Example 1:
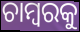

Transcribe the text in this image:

ଚାମ୍ବରକୁ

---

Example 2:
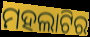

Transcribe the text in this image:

ମହଲାଟିର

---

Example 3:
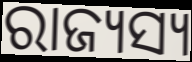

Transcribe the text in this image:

ରାଜ୍ୟସ୍ୟ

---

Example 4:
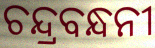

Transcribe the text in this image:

ଚନ୍ଦ୍ରବନ୍ଧନୀ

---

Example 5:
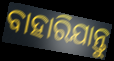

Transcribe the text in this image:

ବାହାରିଯାନ୍ତୁ